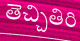
తెచ్చితిరి